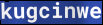
kugcinwe